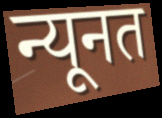
न्यूनत